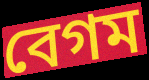
বেগম